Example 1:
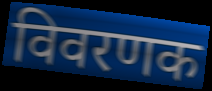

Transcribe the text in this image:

विवरणक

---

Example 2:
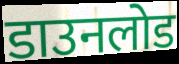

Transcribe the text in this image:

डाउनलोड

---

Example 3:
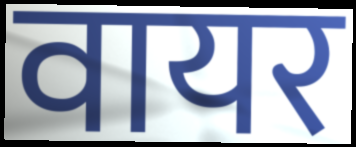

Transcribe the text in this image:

वायर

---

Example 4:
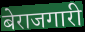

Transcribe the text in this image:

बेराजगारी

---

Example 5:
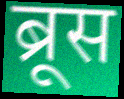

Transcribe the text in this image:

ब्रूस